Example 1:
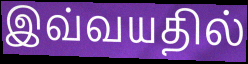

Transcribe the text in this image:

இவ்வயதில்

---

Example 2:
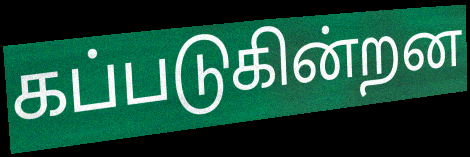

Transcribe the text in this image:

கப்படுகின்றன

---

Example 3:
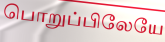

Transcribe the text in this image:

பொறுப்பிலேயே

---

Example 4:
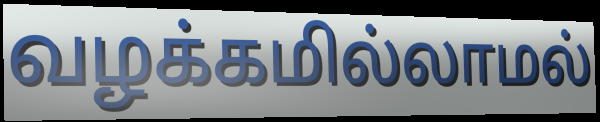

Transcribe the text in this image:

வழக்கமில்லாமல்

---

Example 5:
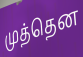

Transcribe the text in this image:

முத்தென